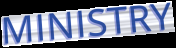
MINISTRY